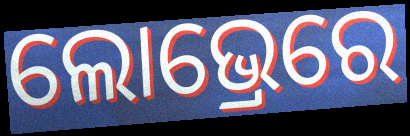
ଲୋଭ୍ରେରେ